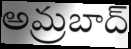
అమ్రబాద్